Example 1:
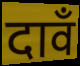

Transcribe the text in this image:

दावँ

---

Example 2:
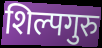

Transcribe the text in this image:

शिल्पगुरु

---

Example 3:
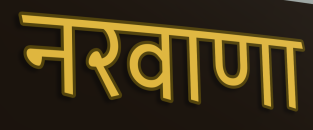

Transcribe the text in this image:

नरवाणा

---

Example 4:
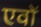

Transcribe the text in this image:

एवों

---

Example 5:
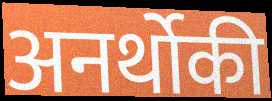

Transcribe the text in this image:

अनर्थोकी